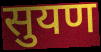
सुयण